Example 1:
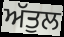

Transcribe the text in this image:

ਅੱਤੁਲ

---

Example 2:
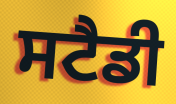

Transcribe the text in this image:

ਸਟੈਡੀ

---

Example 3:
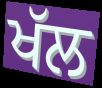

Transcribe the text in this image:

ਖੱਲ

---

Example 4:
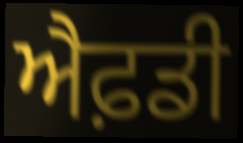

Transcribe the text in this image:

ਐਫ਼ਡੀ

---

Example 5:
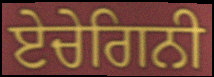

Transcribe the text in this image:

ਏਚੇਗਿਨੀ